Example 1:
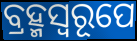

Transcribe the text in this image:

ବ୍ରହ୍ମସ୍ୱରୂପେ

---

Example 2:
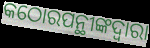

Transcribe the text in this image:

କଠୋରପନ୍ଥୀଙ୍କଦ୍ୱାରା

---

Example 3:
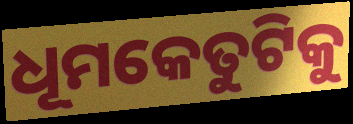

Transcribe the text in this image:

ଧୂମକେତୁଟିକୁ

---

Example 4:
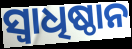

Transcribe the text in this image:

ସ୍ୱାଧିଷ୍ଠାନ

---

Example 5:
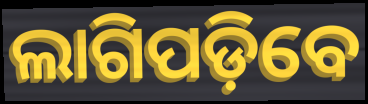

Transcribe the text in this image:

ଲାଗିପଡ଼ିବେ